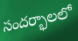
సందర్భాలలో